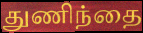
துணிந்தை